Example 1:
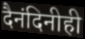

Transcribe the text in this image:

दैनंदिनीही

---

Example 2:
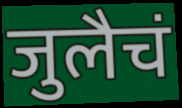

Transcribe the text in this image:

जुलैचं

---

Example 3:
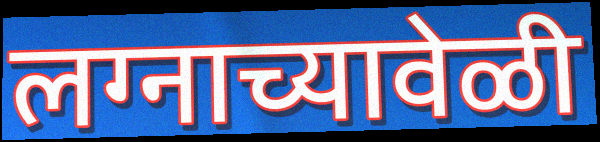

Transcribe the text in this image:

लग्नाच्यावेळी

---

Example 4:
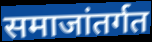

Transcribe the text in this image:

समाजांतर्गत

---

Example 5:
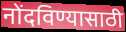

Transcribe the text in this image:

नोंदविण्यासाठी